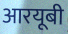
आरयूबी